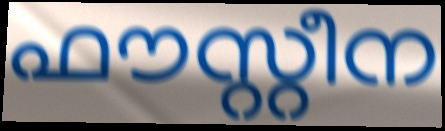
ഫൗസ്റ്റീന